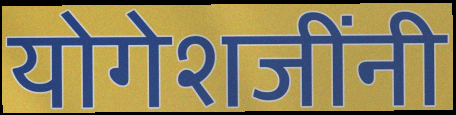
योगेशजींनी